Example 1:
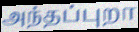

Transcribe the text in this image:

அந்தப்புறா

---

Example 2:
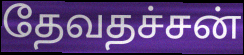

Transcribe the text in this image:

தேவதச்சன்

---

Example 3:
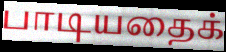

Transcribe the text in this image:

பாடியதைக்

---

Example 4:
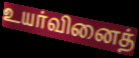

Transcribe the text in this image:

உயர்வினைத்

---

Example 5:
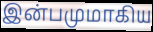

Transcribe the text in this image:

இன்பமுமாகிய